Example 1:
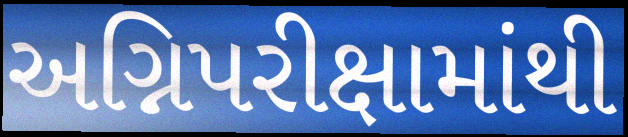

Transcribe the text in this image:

અગ્નિપરીક્ષામાંથી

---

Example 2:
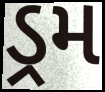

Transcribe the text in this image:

ડ્રમ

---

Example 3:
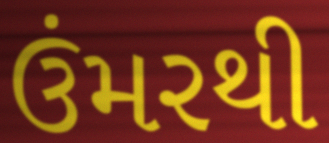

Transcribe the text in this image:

ઉંમરથી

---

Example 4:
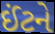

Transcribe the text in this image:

ઈંટને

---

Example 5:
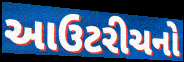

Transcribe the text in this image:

આઉટરીચનો